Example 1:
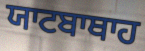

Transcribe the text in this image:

ਯਾਟਬਾਥਾਹ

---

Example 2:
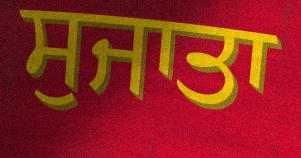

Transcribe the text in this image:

ਸੁਜਾਤਾ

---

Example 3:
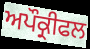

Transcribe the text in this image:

ਅਪੌਕ੍ਰੀਫਲ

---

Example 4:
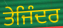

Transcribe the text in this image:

ਤੇਜਿੰਦਰ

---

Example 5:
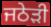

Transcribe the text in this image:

ਜਠੇੜੀ